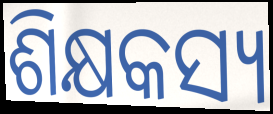
ଶିକ୍ଷକସ୍ୟ